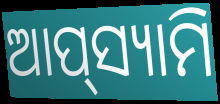
ଆପ୍‌ସ୍ୟାମି